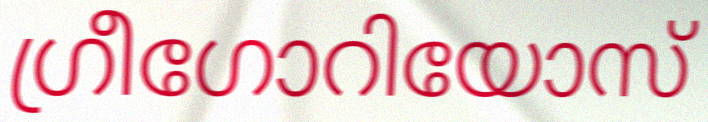
ഗ്രീഗോറിയോസ്